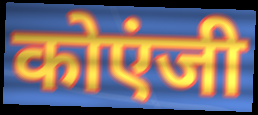
कोएंजी